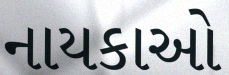
નાયકાઓ